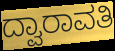
ದ್ವಾರಾವತಿ